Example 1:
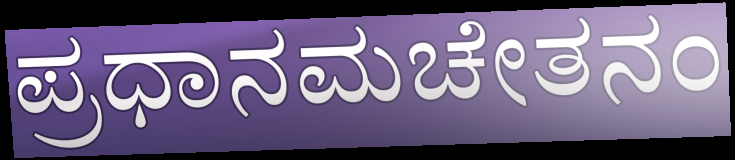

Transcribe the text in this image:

ಪ್ರಧಾನಮಚೇತನಂ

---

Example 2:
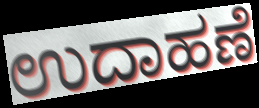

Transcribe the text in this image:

ಉದಾಹಣೆ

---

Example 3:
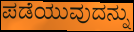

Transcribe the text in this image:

ಪಡೆಯುವುದನ್ನು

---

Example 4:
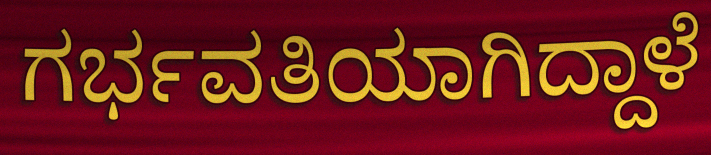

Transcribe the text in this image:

ಗರ್ಭವತಿಯಾಗಿದ್ದಾಳೆ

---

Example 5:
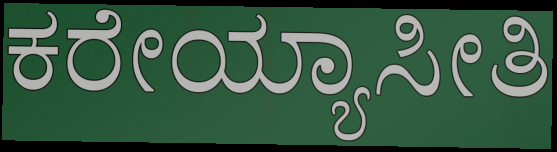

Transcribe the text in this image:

ಕರೇಯ್ಯಾಸೀತಿ